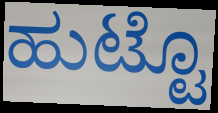
ಹುಟ್ಟೊ